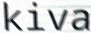
kiva